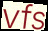
vfs